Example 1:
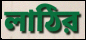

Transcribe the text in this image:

লাঠির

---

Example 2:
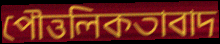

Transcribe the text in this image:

পৌত্তলিকতাবাদ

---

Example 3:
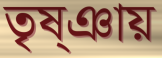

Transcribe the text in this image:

তৃষ্ঞায়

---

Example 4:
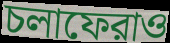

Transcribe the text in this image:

চলাফেরাও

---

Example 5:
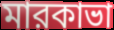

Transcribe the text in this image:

মারকাভা